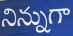
నిన్నుగా